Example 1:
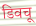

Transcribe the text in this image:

डिवचू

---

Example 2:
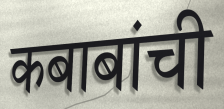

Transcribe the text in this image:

कबाबांची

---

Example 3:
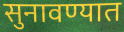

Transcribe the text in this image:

सुनावण्यात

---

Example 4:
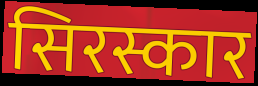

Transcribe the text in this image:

सिरस्कार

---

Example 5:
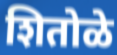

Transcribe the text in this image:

शितोळे